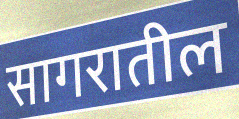
सागरातील